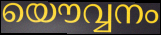
യൌവ്വനം